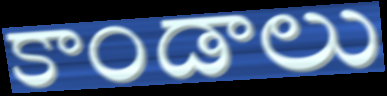
కాండాలు